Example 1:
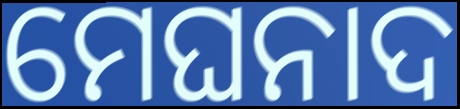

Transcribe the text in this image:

ମେଘନାଦ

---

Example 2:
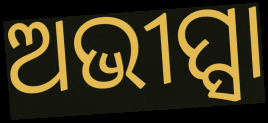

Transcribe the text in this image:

ଅଭୀପ୍ସା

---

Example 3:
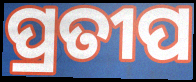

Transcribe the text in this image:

ପ୍ରତୀପ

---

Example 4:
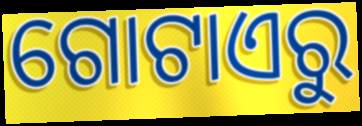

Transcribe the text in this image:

ଗୋଟାଏରୁ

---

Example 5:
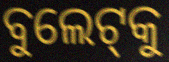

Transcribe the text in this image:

ବୁଲେଟ୍‌କୁ